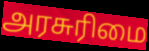
அரசுரிமை